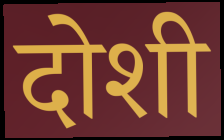
दोशी